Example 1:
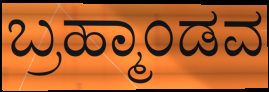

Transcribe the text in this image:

ಬ್ರಹ್ಮಾಂಡವ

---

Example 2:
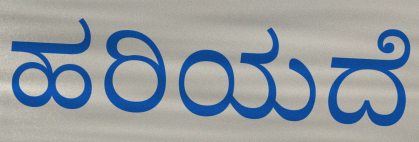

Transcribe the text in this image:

ಹರಿಯದೆ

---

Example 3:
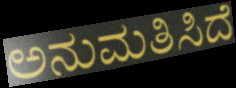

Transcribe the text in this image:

ಅನುಮತಿಸಿದೆ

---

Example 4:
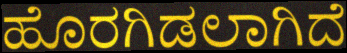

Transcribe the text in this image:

ಹೊರಗಿಡಲಾಗಿದೆ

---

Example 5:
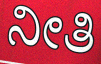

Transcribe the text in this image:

ನೀತಿ